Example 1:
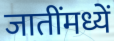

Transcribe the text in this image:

जातींमध्यें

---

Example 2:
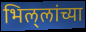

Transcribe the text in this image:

भिल्लांच्या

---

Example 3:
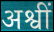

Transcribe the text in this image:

अश्वीं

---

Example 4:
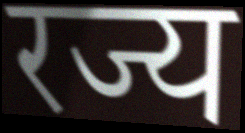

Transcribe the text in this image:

रज्य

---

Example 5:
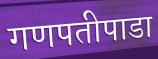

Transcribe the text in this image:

गणपतीपाडा